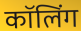
कॉलिंग